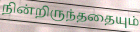
நின்றிருந்ததையும்